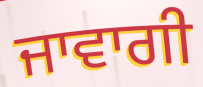
ਜਾਵਾਗੀ